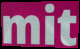
mit